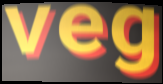
veg